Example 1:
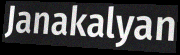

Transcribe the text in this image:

Janakalyan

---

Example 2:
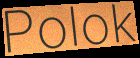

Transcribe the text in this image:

Polok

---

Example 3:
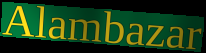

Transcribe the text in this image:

Alambazar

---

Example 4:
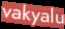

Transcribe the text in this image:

vakyalu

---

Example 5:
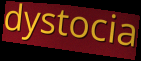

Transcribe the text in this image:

dystocia